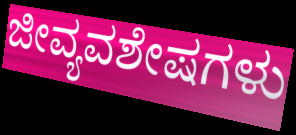
ಜೀವ್ಯವಶೇಷಗಳು